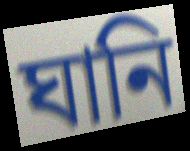
ঘানি